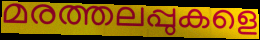
മരത്തലപ്പുകളെ